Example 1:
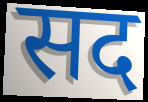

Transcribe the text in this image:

सद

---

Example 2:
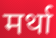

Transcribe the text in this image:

मर्था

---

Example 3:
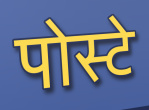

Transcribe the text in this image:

पोस्टे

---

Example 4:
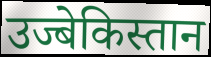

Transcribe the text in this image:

उज्बेकिस्तान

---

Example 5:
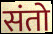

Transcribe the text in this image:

संतो